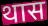
थास